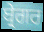
ਬ੍ਰੇਗਰ